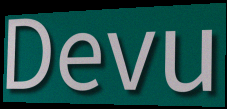
Devu